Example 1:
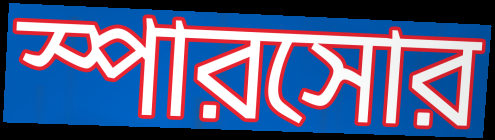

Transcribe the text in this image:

স্পারসোর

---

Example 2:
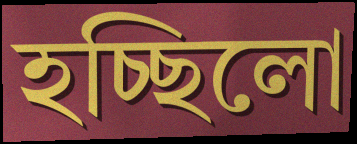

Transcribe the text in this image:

হচ্ছিলো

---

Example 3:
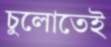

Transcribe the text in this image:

চুলোতেই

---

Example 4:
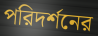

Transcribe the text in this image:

পরিদর্শনের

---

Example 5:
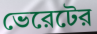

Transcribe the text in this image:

ভেরেটের